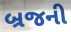
બ્રજની